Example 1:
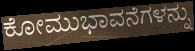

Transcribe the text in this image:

ಕೋಮುಭಾವನೆಗಳನ್ನು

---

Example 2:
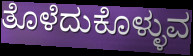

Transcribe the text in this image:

ತೊಳೆದುಕೊಳ್ಳುವ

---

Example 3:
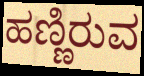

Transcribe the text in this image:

ಹಣ್ಣಿರುವ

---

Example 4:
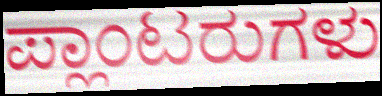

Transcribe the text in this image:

ಪ್ಲಾಂಟರುಗಳು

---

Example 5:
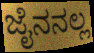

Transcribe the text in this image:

ಜೈನನಲ್ಲ